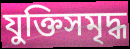
যুক্তিসমৃদ্ধ